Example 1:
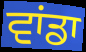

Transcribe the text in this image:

ਵਾਂਡਾ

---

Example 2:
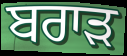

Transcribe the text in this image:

ਬਰਾੜ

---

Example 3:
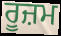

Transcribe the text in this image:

ਰੂਜ਼ਮ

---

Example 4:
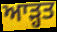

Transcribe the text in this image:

ਆੜ੍ਹਤ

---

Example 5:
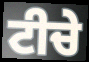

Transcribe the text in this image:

ਟੀਚੇ